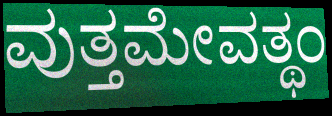
ವುತ್ತಮೇವತ್ಥಂ